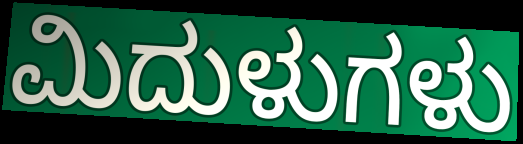
ಮಿದುಳುಗಳು